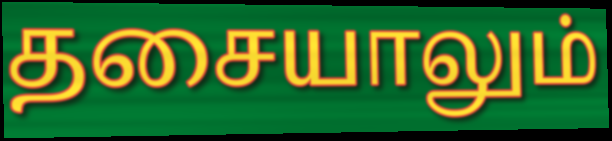
தசையாலும்